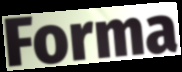
Forma